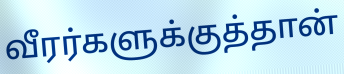
வீரர்களுக்குத்தான்